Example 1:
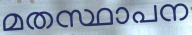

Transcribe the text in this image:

മതസ്ഥാപന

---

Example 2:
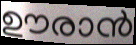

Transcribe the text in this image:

ഊരാൻ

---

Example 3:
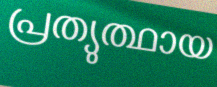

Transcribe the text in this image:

പ്രത്യുത്ഥായ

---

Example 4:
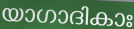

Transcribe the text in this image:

യാഗാദികാഃ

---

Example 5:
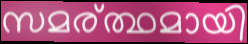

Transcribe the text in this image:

സമര്ത്ഥമായി